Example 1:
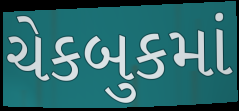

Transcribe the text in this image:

ચેકબુકમાં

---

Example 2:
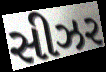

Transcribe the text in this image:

સીઝર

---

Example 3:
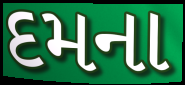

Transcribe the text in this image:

દમના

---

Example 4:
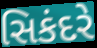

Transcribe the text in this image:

સિકંદરે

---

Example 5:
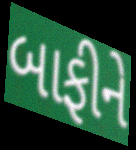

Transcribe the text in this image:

બાફીને